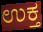
ಉಕ್ತ